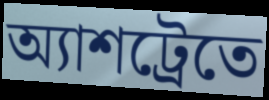
অ্যাশট্রেতে